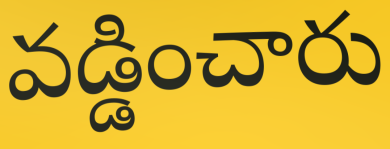
వడ్డించారు